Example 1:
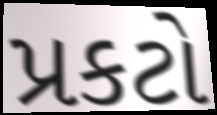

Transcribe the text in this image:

પ્રકટો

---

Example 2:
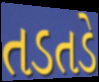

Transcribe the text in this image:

તડતડે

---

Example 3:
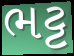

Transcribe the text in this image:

ભટ્ટ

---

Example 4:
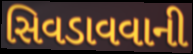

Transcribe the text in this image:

સિવડાવવાની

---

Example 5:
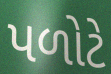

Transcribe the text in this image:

પળોટે